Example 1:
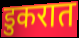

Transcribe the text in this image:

डुकरात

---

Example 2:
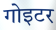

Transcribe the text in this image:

गोइटर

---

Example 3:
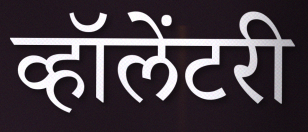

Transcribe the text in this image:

व्हॉलेंटरी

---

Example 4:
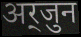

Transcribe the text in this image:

अर्जुन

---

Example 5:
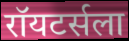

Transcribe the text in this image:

रॉयटर्सला